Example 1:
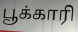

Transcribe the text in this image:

பூக்காரி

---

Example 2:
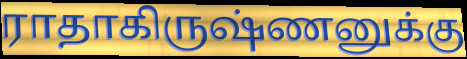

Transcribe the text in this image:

ராதாகிருஷ்ணனுக்கு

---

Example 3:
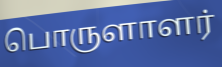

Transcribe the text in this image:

பொருளாளர்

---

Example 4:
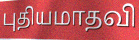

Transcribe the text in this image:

புதியமாதவி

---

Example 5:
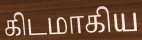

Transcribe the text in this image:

கிடமாகிய